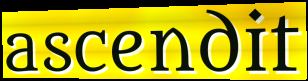
ascendit